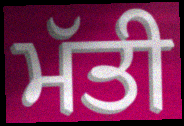
ਮੱਤੀ